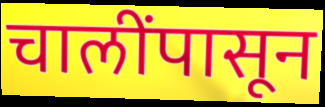
चालींपासून